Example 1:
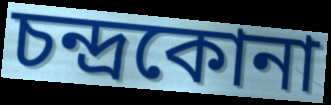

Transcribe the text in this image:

চন্দ্রকোনা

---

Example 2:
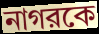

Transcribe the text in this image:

নাগরকে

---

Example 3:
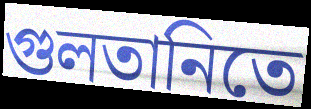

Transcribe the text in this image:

গুলতানিতে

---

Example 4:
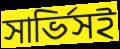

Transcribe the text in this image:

সার্ভিসই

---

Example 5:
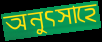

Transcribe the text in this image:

অনুৎসাহে